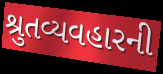
શ્રુતવ્યવહારની